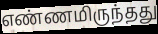
எண்ணமிருந்தது